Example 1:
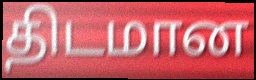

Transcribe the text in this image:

திடமான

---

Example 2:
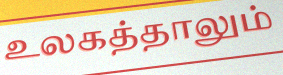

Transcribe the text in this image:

உலகத்தாலும்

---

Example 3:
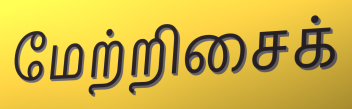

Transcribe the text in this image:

மேற்றிசைக்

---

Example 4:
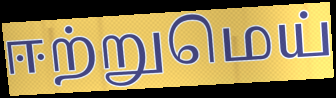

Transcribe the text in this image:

ஈற்றுமெய்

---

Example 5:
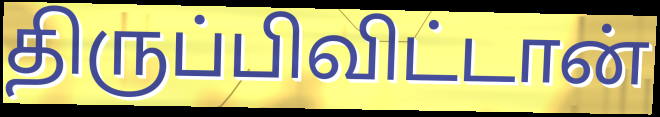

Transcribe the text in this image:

திருப்பிவிட்டான்